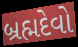
બ્રહ્મદેવો